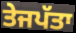
ਤੇਜਪੱਤਾ